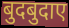
बुदबुदाए